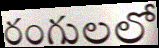
రంగులలో